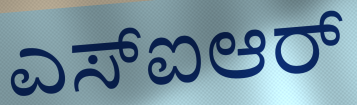
ಎಸ್ಐಆರ್